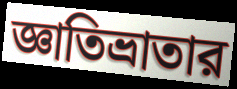
জ্ঞাতিভ্রাতার